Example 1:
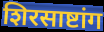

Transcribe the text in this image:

शिरसाष्टांग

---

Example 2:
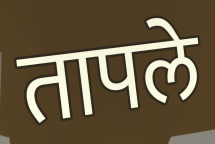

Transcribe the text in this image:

तापले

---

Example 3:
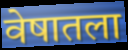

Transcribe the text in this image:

वेषातला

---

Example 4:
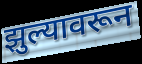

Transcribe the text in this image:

झुल्यावरून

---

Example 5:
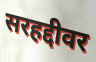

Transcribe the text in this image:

सरहद्दीवर